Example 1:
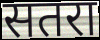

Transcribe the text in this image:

सतरा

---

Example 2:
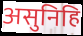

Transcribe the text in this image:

असुनिहि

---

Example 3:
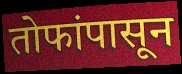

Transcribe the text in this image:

तोफांपासून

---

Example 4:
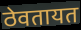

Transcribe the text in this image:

ठेवतायत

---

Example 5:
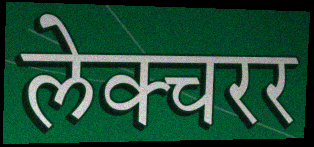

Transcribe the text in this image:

लेक्चरर